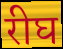
रीघ